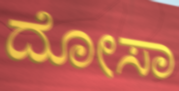
ದೋಸಾ